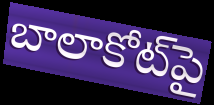
బాలాకోట్‌పై